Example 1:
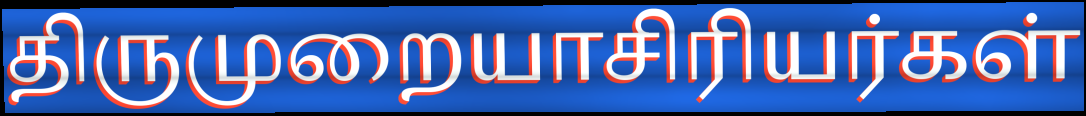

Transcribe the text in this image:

திருமுறையாசிரியர்கள்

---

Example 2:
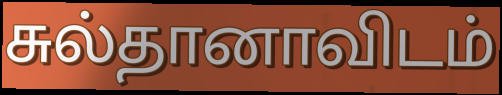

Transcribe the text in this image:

சுல்தானாவிடம்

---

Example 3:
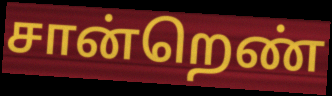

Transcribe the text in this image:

சான்றெண்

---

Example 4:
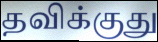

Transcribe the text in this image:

தவிக்குது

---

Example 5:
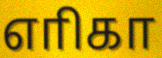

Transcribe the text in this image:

எரிகா